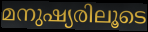
മനുഷ്യരിലൂടെ